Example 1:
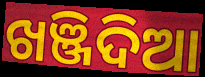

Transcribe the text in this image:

ଖଞ୍ଜିଦିଆ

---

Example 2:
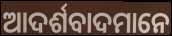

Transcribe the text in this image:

ଆଦର୍ଶବାଦମାନେ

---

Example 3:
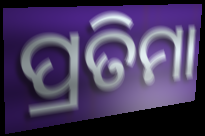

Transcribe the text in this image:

ପ୍ରତିମା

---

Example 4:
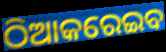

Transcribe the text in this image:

ଠିଆକରେଇବ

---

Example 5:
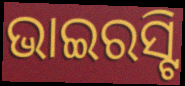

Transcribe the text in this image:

ଭାଇରସ୍ଟି